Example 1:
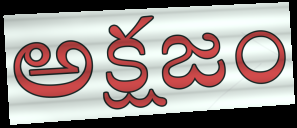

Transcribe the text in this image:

అక్షజం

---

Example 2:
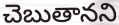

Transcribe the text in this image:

చెబుతానని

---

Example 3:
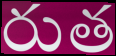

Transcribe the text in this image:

రుత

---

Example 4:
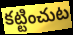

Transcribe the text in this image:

కట్టించుట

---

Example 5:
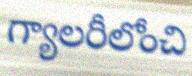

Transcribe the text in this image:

గ్యాలరీలోంచి